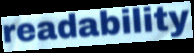
readability